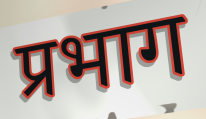
प्रभाग